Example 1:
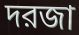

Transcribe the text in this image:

দরজা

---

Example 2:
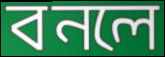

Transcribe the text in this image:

বনলে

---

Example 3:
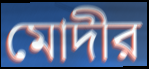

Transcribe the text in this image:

মোদীর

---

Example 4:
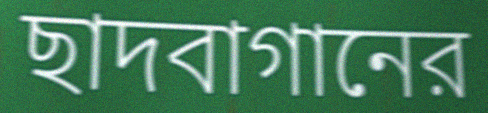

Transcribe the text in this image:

ছাদবাগানের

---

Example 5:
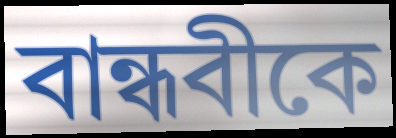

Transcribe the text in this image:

বান্ধবীকে